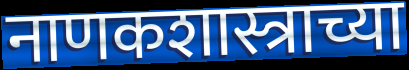
नाणकशास्त्राच्या